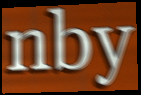
nby